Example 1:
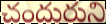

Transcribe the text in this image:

చందురుని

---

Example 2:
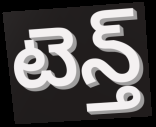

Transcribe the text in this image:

టెన్త్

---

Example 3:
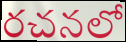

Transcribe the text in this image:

రచనలో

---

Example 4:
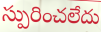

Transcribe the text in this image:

స్పురించలేదు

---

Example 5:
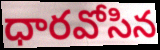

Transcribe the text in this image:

ధారవోసిన